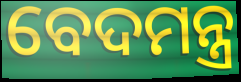
ବେଦମନ୍ତ୍ର